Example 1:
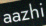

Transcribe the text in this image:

aazhi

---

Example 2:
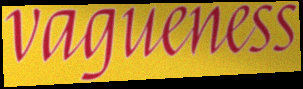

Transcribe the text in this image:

vagueness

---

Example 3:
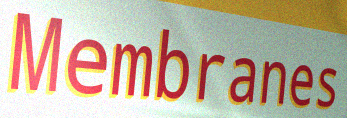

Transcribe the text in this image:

Membranes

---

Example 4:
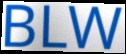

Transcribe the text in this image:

BLW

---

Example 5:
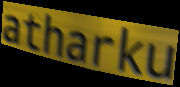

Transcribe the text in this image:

atharku